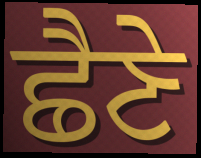
ਛੈਣੇ